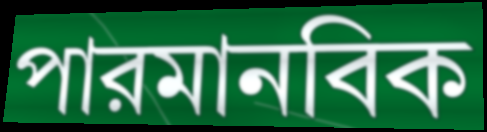
পারমানবিক